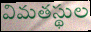
విమతస్థుల